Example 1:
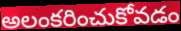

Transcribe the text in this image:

అలంకరించుకోవడం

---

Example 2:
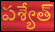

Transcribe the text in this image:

పశ్యేత్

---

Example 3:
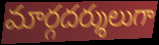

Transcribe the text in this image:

మార్గదర్శులుగా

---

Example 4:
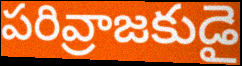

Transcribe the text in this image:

పరివ్రాజకుడై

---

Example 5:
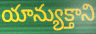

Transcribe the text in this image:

యాన్యుక్తాని